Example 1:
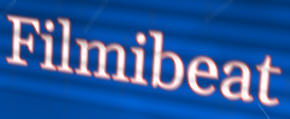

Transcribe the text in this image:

Filmibeat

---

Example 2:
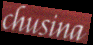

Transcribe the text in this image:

chusina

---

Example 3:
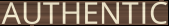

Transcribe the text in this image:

AUTHENTIC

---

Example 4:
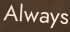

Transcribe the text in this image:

Always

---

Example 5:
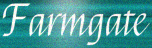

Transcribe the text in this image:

Farmgate